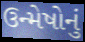
ઉન્મેષોનું